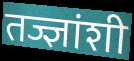
तज्ज्ञांशी